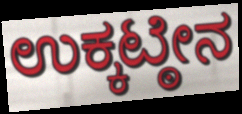
ಉಕ್ಕಟ್ಠೇನ